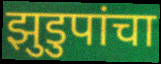
झुडुपांचा